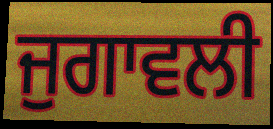
ਜੁਗਾਵਲੀ